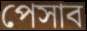
পেসাব